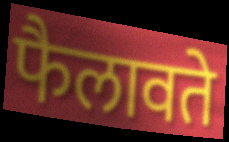
फैलावते